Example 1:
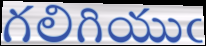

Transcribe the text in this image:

గలిగియుఁ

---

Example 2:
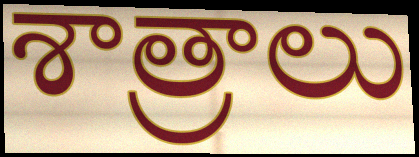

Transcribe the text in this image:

శాత్రాలు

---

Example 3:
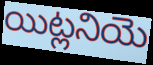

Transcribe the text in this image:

యిట్లనియె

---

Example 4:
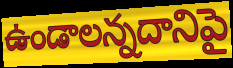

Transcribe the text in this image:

ఉండాలన్నదానిపై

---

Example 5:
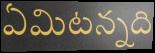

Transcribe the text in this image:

ఏమిటన్నది